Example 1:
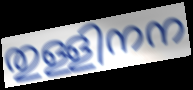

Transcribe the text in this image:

തുള്ളിനന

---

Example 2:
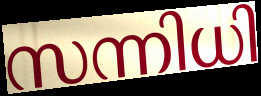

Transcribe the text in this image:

സന്നിധി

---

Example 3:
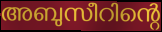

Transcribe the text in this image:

അബുസീറിന്റെ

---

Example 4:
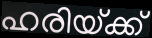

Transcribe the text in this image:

ഹരിയ്‌ക്ക്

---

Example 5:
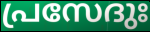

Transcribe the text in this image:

പ്രസേദുഃ